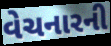
વેચનારની